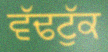
ਵੱਢਟੁੱਕ